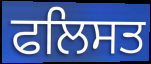
ਫਲਿਸਤ